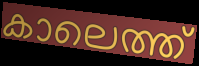
കാലെത്ത്